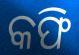
କଫି